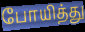
போயித்து